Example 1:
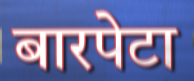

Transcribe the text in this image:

बारपेटा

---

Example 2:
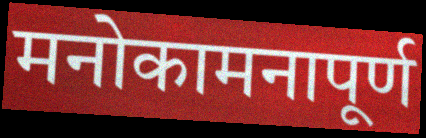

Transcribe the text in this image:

मनोकामनापूर्ण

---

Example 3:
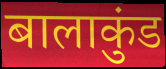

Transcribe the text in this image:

बालाकुंड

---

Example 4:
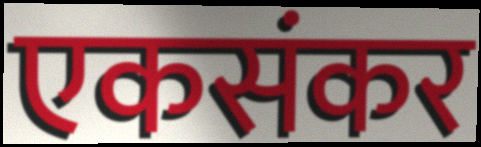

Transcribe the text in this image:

एकसंकर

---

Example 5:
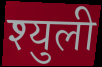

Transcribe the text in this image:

श्युली